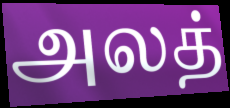
அலத்